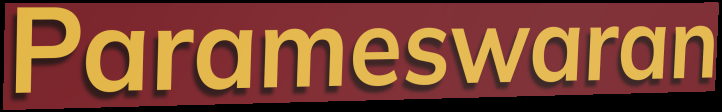
Parameswaran